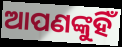
ଆପଣଙ୍କୁହିଁ